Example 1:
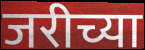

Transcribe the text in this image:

जरीच्या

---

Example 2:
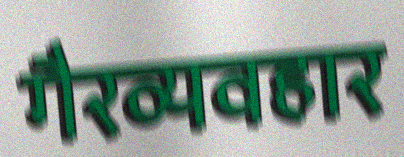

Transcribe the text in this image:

गैरव्यवहार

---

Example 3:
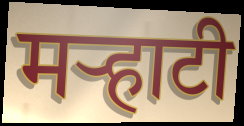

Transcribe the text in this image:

मऱ्हाटी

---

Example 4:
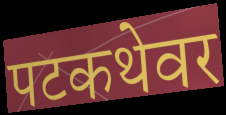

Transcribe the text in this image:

पटकथेवर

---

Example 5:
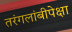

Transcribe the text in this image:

तरंगलांबीपेक्षा